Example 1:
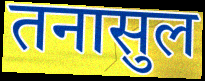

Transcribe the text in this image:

तनासुल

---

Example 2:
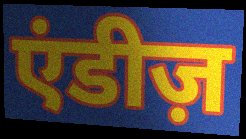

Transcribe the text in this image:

एंडीज़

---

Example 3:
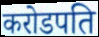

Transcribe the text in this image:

करोडपति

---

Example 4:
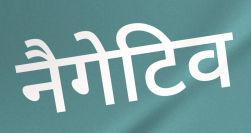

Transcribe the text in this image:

नैगेटिव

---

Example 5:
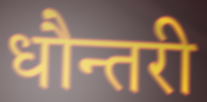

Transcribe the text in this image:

धौन्तरी